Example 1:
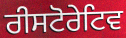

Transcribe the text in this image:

ਰੀਸਟੋਰੇਟਿਵ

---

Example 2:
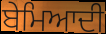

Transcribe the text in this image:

ਬੇਮਿਆਦੀ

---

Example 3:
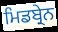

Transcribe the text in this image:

ਮਿਡਬ੍ਰੇਨ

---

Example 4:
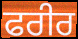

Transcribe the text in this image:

ਫਰੀਰ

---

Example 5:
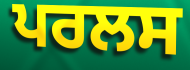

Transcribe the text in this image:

ਪਰਲਸ